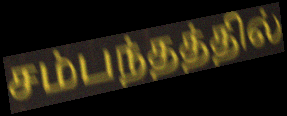
சம்பந்தத்தில்